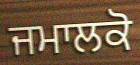
ਜਮਾਲਕੋ